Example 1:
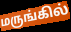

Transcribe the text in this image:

மருங்கில்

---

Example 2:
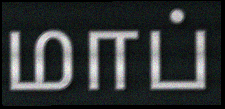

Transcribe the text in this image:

மாப்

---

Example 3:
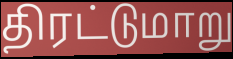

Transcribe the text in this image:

திரட்டுமாறு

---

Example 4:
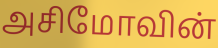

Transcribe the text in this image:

அசிமோவின்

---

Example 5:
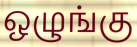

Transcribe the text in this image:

ஒழுங்கு